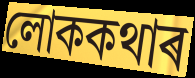
লোককথাৰ